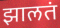
झालतं